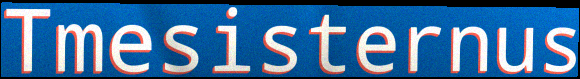
Tmesisternus